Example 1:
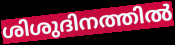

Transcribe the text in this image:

ശിശുദിനത്തിൽ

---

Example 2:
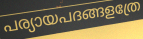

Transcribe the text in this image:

പര്യായപദങ്ങളത്രേ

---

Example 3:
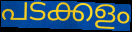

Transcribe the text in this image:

പടക്കളം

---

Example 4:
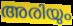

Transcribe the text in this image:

അരിയും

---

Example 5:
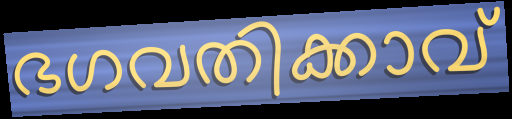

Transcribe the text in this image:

ഭഗവതിക്കാവ്